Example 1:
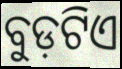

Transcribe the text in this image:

ବୁଡ଼ଟିଏ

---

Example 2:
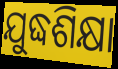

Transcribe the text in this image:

ଯୁଦ୍ଧଶିକ୍ଷା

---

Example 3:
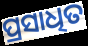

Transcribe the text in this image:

ପ୍ରସାଧିତ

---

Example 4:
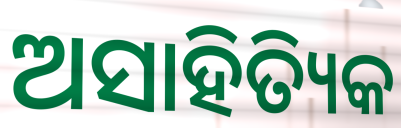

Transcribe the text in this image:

ଅସାହିତ୍ୟିକ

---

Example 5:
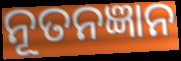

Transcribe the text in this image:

ନୂତନଜ୍ଞାନ